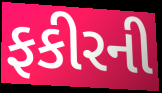
ફકીરની